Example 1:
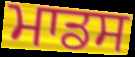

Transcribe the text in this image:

ਮਾਡਸ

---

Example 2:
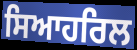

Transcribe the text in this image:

ਸਿਆਹਰਿਲ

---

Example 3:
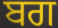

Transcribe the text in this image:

ਬਗ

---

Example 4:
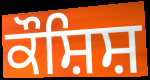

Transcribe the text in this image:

ਕੌਸ਼ਿਸ਼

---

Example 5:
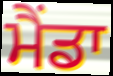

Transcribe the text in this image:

ਮੈਂਡਾ